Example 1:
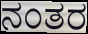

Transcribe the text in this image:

ನಂತರ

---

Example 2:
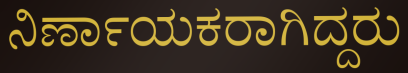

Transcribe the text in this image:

ನಿರ್ಣಾಯಕರಾಗಿದ್ದರು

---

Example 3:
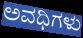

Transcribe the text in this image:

ಅವಧಿಗಳು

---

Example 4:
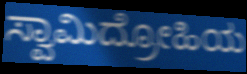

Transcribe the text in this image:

ಸ್ವಾಮಿದ್ರೋಹಿಯ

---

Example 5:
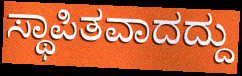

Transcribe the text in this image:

ಸ್ಥಾಪಿತವಾದದ್ದು